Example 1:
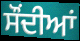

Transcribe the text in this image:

ਸੌਂਦੀਆਂ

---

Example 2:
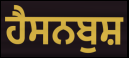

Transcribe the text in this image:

ਹੈਸਨਬੁਸ਼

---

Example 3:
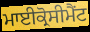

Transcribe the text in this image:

ਮਾਈਕ੍ਰੋਸੀਮੈਂਟ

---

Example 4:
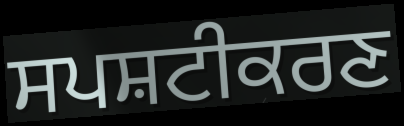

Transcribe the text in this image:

ਸਪਸ਼ਟੀਕਰਣ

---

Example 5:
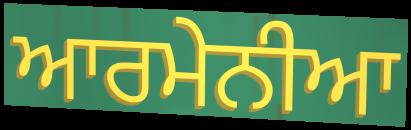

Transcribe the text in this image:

ਆਰਮੇਨੀਆ